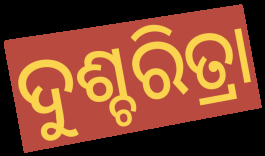
ଦୁଶ୍ଚରିତ୍ରା